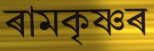
ৰামকৃষ্ণৰ